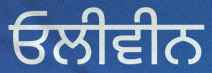
ਓਲੀਵੀਨ